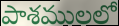
పాశములలో